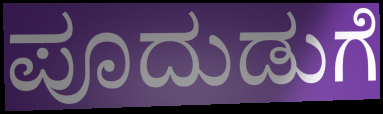
ಪೂದುಡುಗೆ